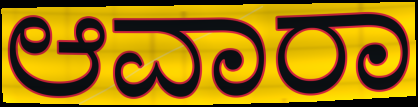
ಆವಾರಾ